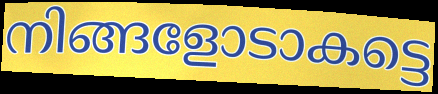
നിങ്ങളോടാകട്ടെ